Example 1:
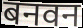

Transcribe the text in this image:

बनवन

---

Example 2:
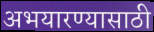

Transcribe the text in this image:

अभयारण्यासाठी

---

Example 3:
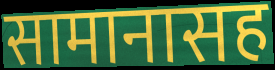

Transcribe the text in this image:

सामानासह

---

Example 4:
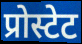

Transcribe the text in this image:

प्रोस्टेट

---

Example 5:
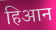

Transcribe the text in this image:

हिआन